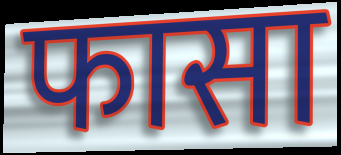
फासा